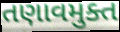
તણાવમુક્ત